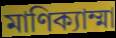
মাণিক্যাম্মা